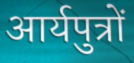
आर्यपुत्रों